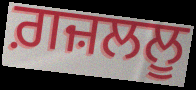
ਗ਼ਜ਼ਲਲੂ